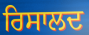
ਰਿਸਾਲਦ